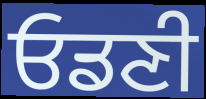
ਓਡਣੀ